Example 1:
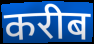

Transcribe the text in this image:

करीब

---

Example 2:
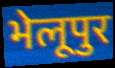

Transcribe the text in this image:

भेलूपुर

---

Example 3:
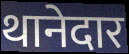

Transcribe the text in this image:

थानेदार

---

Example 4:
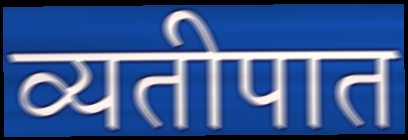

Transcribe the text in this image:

व्यतीपात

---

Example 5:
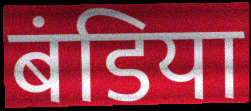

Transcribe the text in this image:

बंडिया